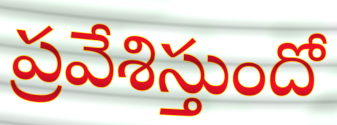
ప్రవేశిస్తుందో